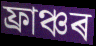
ফ্ৰাঞ্চৰ